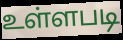
உள்ளபடி